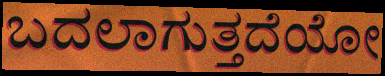
ಬದಲಾಗುತ್ತದೆಯೋ